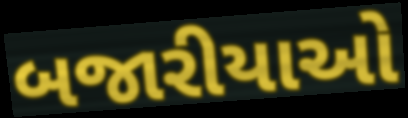
બજારીયાઓ